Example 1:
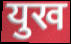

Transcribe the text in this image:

युख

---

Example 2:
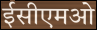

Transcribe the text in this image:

ईसीएमओ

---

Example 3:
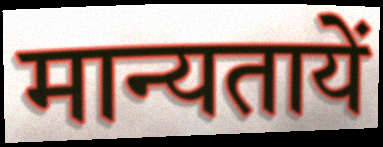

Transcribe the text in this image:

मान्यतायें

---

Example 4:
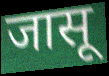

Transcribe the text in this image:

जासू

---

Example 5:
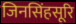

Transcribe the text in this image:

जिनसिंहसूरि